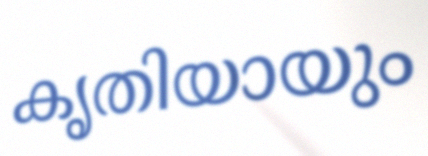
കൃതിയായും